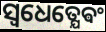
ସ୍ଵଧେତ୍ଯେଵଂ